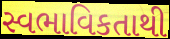
સ્વભાવિકતાથી